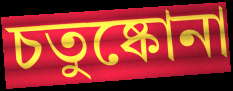
চতুষ্কোনা